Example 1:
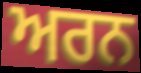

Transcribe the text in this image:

ਅਰਨ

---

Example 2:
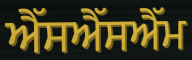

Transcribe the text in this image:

ਐੱਸਐੱਸਐੱਮ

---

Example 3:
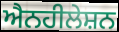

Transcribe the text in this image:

ਐਨਹੀਲੇਸ਼ਨ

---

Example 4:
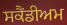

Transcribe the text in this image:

ਸਕੈਂਡੀਅਮ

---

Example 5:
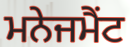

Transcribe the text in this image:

ਮਨੇਜਮੈਂਟ